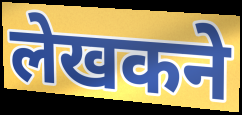
लेखकने